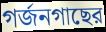
গর্জনগাছের